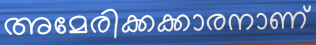
അമേരിക്കക്കാരനാണ്